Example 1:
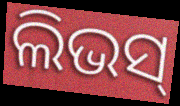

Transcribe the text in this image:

ଲିଭସ୍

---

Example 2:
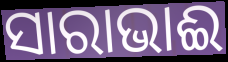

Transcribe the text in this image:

ସାରାଭାଈ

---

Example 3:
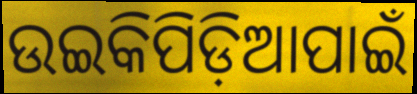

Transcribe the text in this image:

ଉଇକିପିଡ଼ିଆପାଇଁ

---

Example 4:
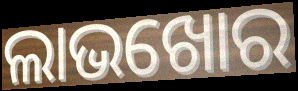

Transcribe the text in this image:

ଲାଭଖୋର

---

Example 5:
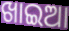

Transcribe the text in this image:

ଖାଇଆ